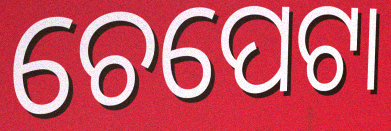
ଚେପେଟା